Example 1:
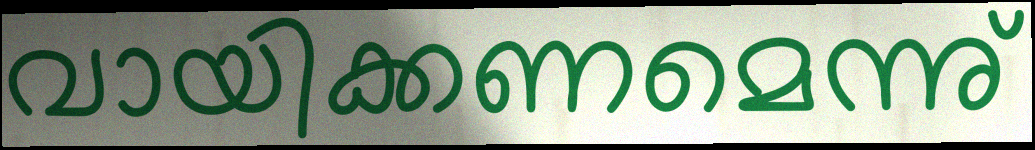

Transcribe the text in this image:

വായിക്കണമെന്നു്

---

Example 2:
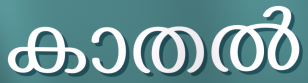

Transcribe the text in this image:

കാതൽ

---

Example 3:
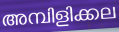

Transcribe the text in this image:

അമ്പിളിക്കല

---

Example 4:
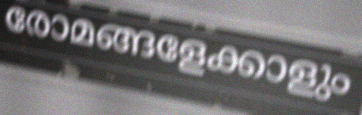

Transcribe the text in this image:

രോമങ്ങളേക്കാളും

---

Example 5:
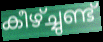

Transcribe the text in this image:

കീഴ്ച്ചുണ്ട്